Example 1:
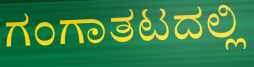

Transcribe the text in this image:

ಗಂಗಾತಟದಲ್ಲಿ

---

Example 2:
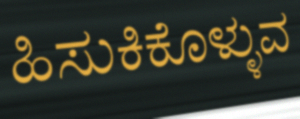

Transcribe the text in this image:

ಹಿಸುಕಿಕೊಳ್ಳುವ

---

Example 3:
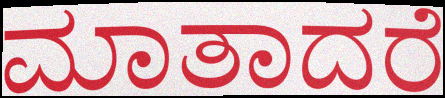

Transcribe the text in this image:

ಮಾತಾದರೆ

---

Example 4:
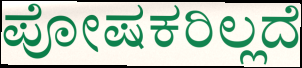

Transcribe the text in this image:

ಪೋಷಕರಿಲ್ಲದೆ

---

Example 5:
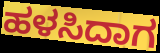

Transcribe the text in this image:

ಹಳಸಿದಾಗ